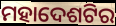
ମହାଦେଶଟିର